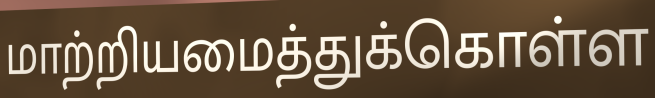
மாற்றியமைத்துக்கொள்ள